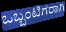
ಒಬ್ಬಂಟಿಗರಾಗಿ